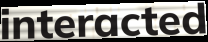
interacted